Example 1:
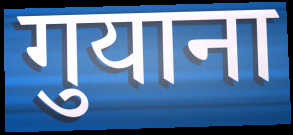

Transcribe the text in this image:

गुयाना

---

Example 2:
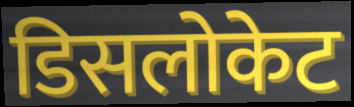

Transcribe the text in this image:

डिसलोकेट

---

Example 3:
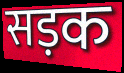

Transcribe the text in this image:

सड़क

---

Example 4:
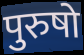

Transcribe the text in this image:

पुरुषो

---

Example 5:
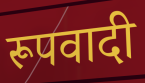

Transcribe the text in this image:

रूपवादी